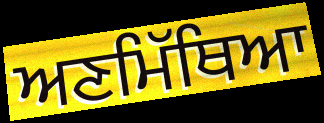
ਅਣਮਿੱਥਿਆ